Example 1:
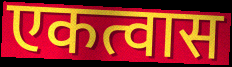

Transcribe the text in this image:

एकत्वास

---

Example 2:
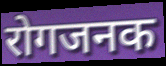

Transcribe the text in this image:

रोगजनक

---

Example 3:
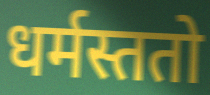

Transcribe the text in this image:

धर्मस्ततो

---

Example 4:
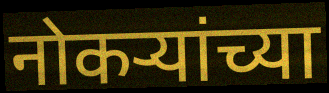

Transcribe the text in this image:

नोकऱ्यांच्या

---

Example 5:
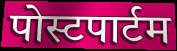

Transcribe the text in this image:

पोस्टपार्टम